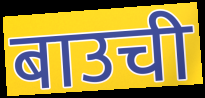
बाउची